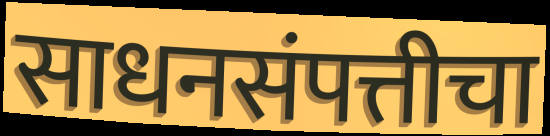
साधनसंपत्तीचा